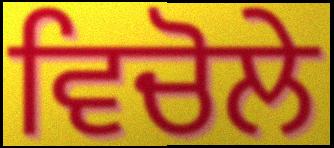
ਵਿਚੋਲੇ